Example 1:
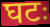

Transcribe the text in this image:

घटः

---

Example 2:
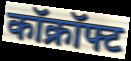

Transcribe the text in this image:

कॉक्रॉफ्ट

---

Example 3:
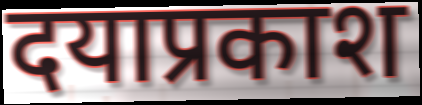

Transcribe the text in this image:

दयाप्रकाश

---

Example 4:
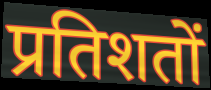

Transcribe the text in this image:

प्रतिशतों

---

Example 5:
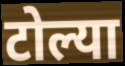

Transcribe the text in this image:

टोल्या